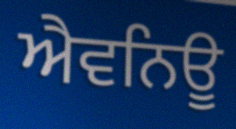
ਐਵਨਿਊ